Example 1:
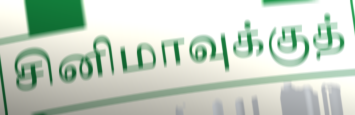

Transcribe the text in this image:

சினிமாவுக்குத்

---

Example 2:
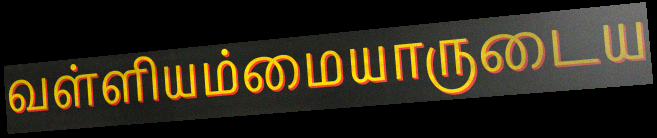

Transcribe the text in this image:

வள்ளியம்மையாருடைய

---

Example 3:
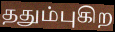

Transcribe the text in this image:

ததும்புகிற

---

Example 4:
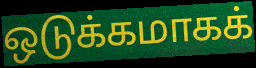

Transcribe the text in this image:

ஒடுக்கமாகக்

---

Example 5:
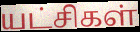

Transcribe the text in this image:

யட்சிகள்